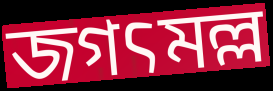
জগৎমল্ল